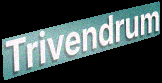
Trivendrum